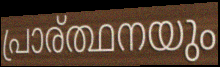
പ്രാര്ത്ഥനയും